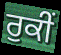
ਰੁਕੀਂ